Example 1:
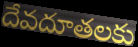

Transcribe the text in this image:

దేవదూతలకు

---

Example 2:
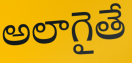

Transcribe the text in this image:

అలాగైతే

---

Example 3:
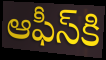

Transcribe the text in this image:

ఆఫీస్‌కి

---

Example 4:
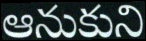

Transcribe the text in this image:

ఆనుకుని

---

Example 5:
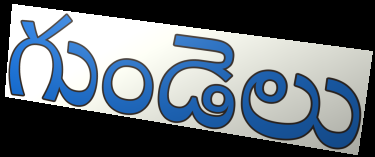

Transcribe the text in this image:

గుండెలు